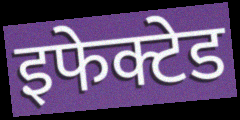
इफेक्टेड